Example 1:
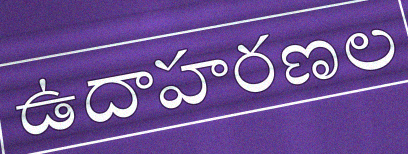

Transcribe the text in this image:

ఉదాహరణల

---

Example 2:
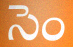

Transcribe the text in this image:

సెం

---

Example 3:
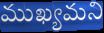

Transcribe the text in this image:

ముఖ్యమని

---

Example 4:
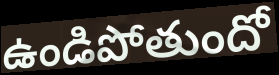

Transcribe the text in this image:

ఉండిపోతుందో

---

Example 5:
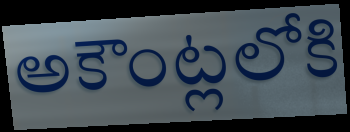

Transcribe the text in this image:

అకౌంట్లలోకి